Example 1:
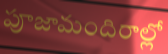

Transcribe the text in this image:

పూజామందిరాల్లో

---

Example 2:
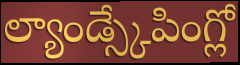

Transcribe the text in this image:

ల్యాండ్స్కేపింగ్లో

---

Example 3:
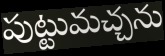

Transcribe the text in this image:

పుట్టుమచ్చను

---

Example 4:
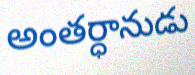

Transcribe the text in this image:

అంతర్ధానుడు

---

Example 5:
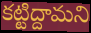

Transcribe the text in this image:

కట్టిద్దామని